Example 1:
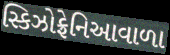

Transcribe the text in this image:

સ્કિઝોફ્રેનિઆવાળા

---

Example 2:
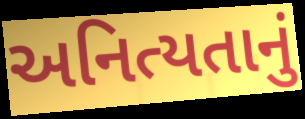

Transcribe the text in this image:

અનિત્યતાનું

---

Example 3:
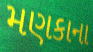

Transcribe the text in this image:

મણકાના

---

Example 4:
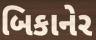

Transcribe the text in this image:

બિકાનેર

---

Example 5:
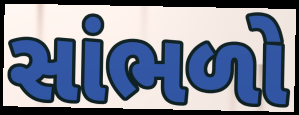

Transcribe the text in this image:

સાંભળો